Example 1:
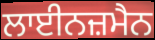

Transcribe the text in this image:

ਲਾਈਨਜ਼ਮੈਨ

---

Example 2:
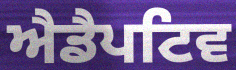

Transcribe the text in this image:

ਐਡੈਪਟਿਵ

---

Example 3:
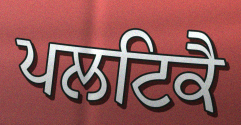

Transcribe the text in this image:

ਪਲਟਿਕੈ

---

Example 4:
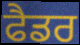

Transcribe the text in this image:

ਫੈਡਰ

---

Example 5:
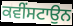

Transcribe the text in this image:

ਕਵੀਂਸਟਾਉਨ